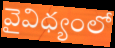
వైవిధ్యంలో